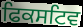
ਫਿਕਸਟਿਵ